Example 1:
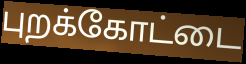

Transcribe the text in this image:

புறக்கோட்டை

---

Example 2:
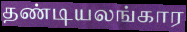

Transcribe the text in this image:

தண்டியலங்கார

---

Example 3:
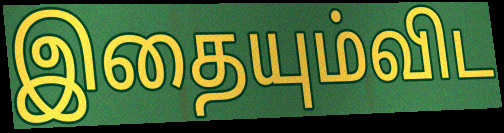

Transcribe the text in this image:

இதையும்விட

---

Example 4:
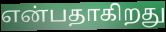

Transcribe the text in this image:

என்பதாகிறது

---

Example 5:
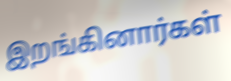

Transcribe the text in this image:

இறங்கினார்கள்